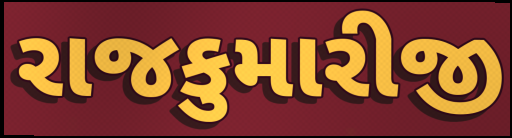
રાજકુમારીજી